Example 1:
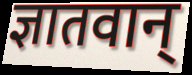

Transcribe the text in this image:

ज्ञातवान्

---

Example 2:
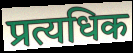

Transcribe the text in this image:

प्रत्यधिक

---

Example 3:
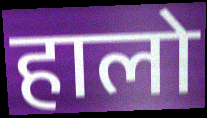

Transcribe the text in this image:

हालो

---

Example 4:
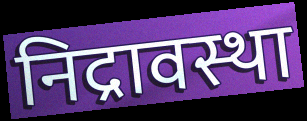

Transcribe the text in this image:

निद्रावस्था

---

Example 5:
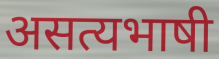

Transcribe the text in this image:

असत्यभाषी